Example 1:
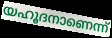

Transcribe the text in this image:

യഹൂദനാണെന്ന്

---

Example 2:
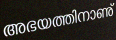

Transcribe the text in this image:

അഭയത്തിനാണു്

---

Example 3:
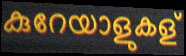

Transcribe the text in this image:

കുറേയാളുകള്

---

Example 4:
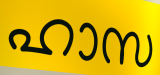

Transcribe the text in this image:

ഹാസ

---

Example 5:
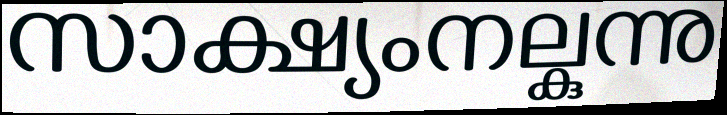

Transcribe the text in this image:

സാക്ഷ്യംനല്കുന്നു